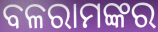
ବଳରାମଙ୍କର